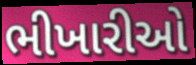
ભીખારીઓ